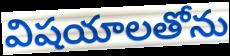
విషయాలతోను